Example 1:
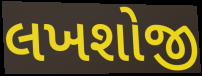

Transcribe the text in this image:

લખશોજી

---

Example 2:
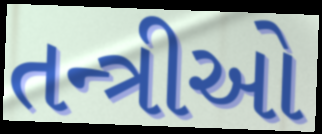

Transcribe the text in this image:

તન્ત્રીઓ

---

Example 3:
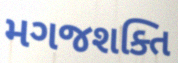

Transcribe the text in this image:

મગજશક્તિ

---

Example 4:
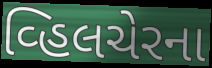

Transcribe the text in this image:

વ્હિલચેરના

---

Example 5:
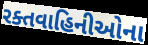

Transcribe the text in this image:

રક્તવાહિનીઓના